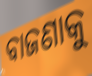
ବାଜଣାକୁ